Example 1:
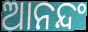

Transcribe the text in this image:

ଆନନ୍ଦଂ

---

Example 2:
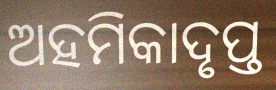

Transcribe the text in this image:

ଅହମିକାଦୃପ୍ତ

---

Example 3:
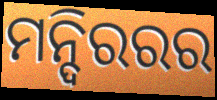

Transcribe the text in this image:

ମନ୍ଦିରରର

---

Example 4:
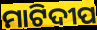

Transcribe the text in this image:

ମାଟିଦୀପ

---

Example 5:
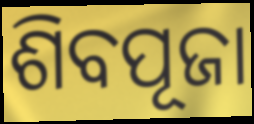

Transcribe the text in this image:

ଶିବପୂଜା